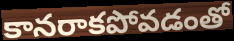
కానరాకపోవడంతో